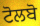
ਟੋਲਬੋ